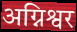
अग्निश्वर